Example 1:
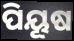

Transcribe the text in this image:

ପିୟୂଷ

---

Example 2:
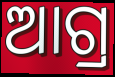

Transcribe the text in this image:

ଆଗ୍ର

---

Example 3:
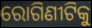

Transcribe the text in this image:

ରୋଗିଣୀଟିକୁ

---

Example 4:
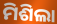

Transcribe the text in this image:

ମିଶିଲା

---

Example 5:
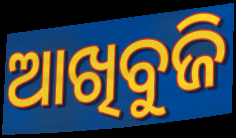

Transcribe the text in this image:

ଆଖିବୁଜି